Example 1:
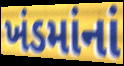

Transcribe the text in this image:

ખંડમાંનાં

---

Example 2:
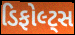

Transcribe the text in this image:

ડિફોલ્ટ્સ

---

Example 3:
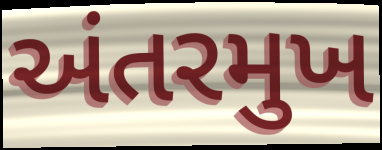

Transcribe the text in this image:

અંતરમુખ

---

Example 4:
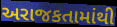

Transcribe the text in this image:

અરાજકતામાંથી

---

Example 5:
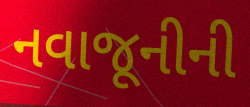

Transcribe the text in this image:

નવાજૂનીની